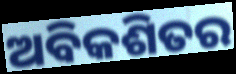
ଅବିକଶିତର